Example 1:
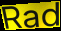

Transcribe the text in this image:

Rad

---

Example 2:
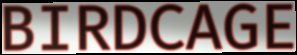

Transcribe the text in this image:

BIRDCAGE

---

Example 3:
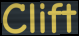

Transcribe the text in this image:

Clift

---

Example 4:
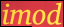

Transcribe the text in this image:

imod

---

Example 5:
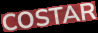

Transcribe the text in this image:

COSTAR